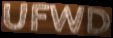
UFWD